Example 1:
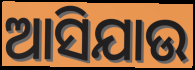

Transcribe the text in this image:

ଆସିଯାଉ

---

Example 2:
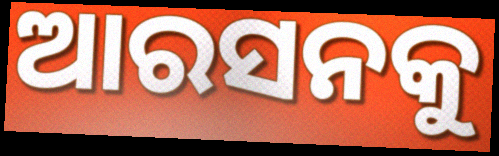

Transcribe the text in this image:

ଆରସନକୁ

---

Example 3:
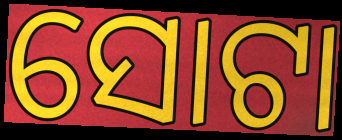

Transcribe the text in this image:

ସୋଟା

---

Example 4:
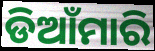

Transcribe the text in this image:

ଡିଆଁମାରି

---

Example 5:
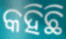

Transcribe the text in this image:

କହିଛି